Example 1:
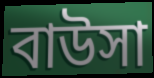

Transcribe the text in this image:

বাউসা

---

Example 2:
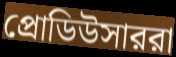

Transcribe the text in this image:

প্রোডিউসাররা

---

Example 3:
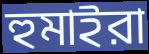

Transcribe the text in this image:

হুমাইরা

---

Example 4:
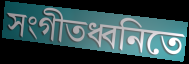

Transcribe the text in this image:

সংগীতধ্বনিতে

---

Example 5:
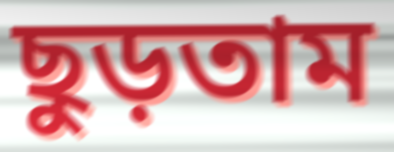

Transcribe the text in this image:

ছুড়তাম